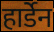
हार्डेन